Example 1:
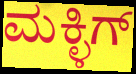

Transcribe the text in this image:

ಮಕ್ಳಿಗ್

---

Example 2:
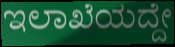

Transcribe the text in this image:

ಇಲಾಖೆಯದ್ದೇ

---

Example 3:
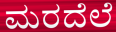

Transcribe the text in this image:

ಮರದೆಲೆ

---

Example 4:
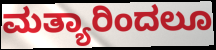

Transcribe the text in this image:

ಮತ್ಯಾರಿಂದಲೂ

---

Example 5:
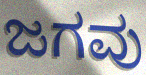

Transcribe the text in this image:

ಜಗವು